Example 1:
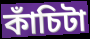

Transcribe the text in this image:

কাঁচিটা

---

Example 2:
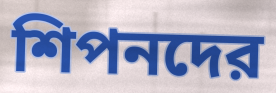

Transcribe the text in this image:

শিপনদের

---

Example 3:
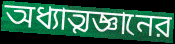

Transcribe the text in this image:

অধ্যাত্মজ্ঞানের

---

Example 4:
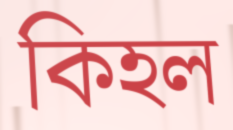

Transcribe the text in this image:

কিহল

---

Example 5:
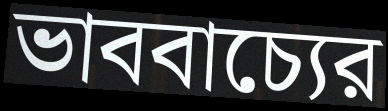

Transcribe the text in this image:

ভাববাচ্যের